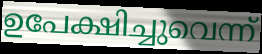
ഉപേക്ഷിച്ചുവെന്ന്